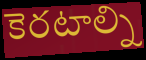
కెరటాల్ని